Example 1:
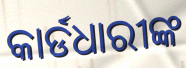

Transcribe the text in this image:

କାର୍ଡଧାରୀଙ୍କ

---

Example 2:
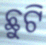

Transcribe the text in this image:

ଛୁଟି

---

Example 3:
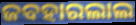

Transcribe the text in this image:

ଜବହାରଲାଲ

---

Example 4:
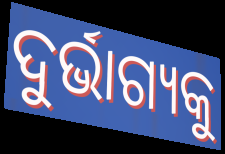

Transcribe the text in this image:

ଦୁର୍ଭାଗ୍ୟକୁ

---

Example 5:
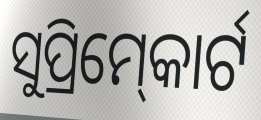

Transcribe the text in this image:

ସୁପ୍ରିମ୍‍କୋର୍ଟ